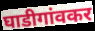
घाडीगांवकर